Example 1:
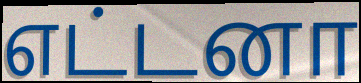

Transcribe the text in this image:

எட்டனா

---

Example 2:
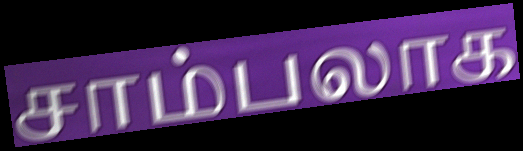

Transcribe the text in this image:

சாம்பலாக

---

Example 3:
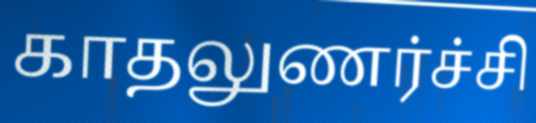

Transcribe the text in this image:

காதலுணர்ச்சி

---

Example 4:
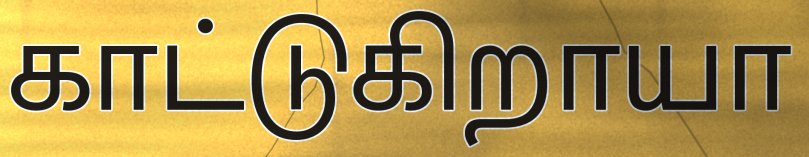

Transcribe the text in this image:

காட்டுகிறாயா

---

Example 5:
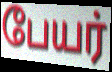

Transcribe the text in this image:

பேயர்